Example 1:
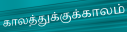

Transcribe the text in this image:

காலத்துக்குக்காலம்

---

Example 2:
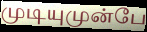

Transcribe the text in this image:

முடியுமுன்பே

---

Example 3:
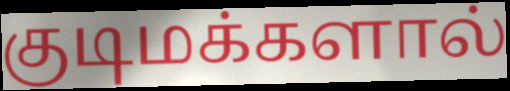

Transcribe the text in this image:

குடிமக்களால்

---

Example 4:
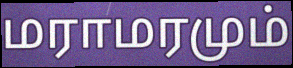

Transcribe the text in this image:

மராமரமும்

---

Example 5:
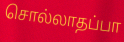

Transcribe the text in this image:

சொல்லாதப்பா